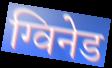
ग्विनेड